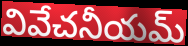
వివేచనీయమ్